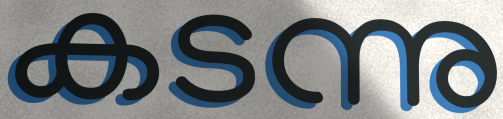
കടന്നു